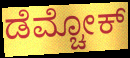
ಡೆಮ್ಚೋಕ್